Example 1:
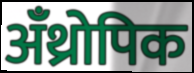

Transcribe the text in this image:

अँथ्रोपिक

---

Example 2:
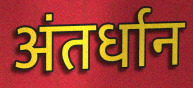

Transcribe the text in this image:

अंतर्धान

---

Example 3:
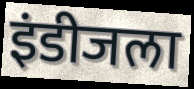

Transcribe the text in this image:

इंडीजला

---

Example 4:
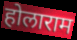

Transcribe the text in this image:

होलाराम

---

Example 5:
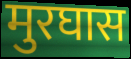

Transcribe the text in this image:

मुरघास